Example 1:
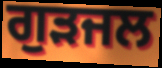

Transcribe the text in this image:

ਗੁੜਜਲ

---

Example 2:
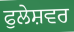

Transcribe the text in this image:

ਫੁਲੇਸ਼ਵਰ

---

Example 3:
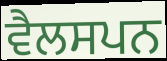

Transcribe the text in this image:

ਵੈਲਸਪਨ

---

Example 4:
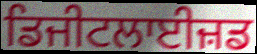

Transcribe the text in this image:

ਡਿਜੀਟਲਾਈਜ਼ਡ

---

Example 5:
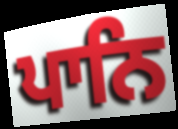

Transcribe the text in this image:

ਪਾਨਿ